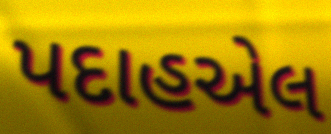
પદાહએલ